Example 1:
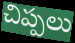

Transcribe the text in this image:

చిప్పలు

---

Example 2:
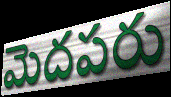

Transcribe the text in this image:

మెదపరు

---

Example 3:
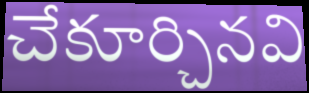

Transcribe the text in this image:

చేకూర్చినవి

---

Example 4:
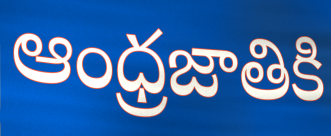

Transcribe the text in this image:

ఆంధ్రజాతికి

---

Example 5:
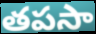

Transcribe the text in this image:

తపసా